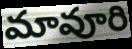
మావూరి